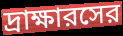
দ্রাক্ষারসের